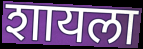
शायला